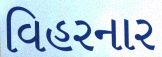
વિહરનાર